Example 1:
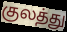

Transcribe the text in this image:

குலத்து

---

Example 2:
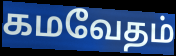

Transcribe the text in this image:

கமவேதம்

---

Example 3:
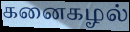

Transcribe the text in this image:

கனைகழல்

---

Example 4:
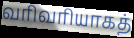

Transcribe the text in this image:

வரிவரியாகத்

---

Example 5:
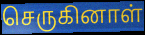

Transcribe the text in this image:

செருகினாள்